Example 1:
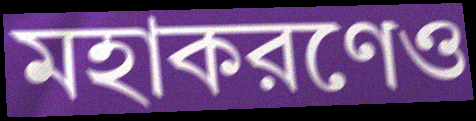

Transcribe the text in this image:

মহাকরণেও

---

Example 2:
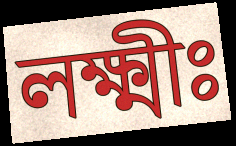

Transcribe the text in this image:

লক্ষ্মীঃ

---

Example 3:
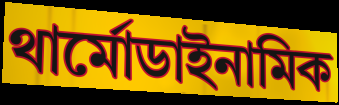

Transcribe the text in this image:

থার্মোডাইনামিক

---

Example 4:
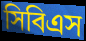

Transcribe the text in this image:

সিবিএস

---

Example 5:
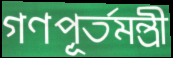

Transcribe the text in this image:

গণপূর্তমন্ত্রী